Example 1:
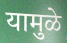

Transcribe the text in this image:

यामुळे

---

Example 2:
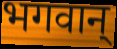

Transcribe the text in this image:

भगवान्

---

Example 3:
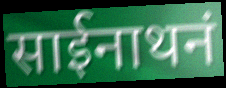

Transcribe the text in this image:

साईनाथनं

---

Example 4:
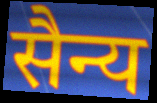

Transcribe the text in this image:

सैन्य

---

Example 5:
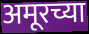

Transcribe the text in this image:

अमूरच्या